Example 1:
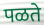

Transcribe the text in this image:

पळते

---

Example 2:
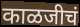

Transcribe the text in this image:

काळजीचं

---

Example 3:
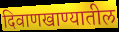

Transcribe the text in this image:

दिवाणखाण्यातील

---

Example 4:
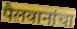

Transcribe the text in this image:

पैलवानांचा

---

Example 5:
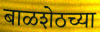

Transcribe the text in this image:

बाळशेठच्या